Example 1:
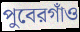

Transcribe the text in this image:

পুবেরগাঁও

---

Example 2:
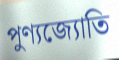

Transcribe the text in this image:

পুণ্যজ্যোতি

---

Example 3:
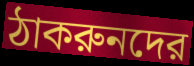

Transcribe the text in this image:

ঠাকরুনদের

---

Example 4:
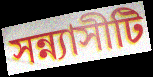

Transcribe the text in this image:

সন্ন্যাসীটি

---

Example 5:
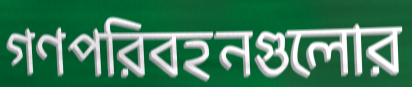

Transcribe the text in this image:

গণপরিবহনগুলোর